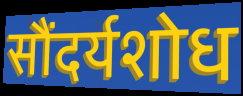
सौंदर्यशोध